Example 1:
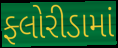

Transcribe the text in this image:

ફ્લોરીડામાં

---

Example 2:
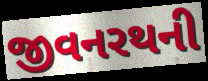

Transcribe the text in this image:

જીવનરથની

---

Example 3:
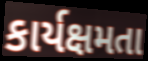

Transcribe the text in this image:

કાર્યક્ષમતા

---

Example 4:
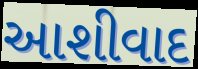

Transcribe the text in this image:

આશીવાદ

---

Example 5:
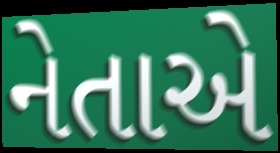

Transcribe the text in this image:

નેતાએ